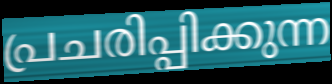
പ്രചരിപ്പിക്കുന്ന